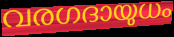
വരഗദായുധം